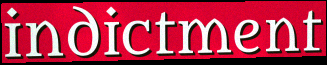
indictment